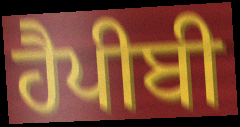
ਹੈਪੀਬੀ